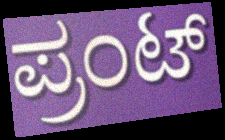
ಪ್ರಂಟ್